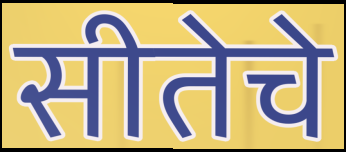
सीतेचे